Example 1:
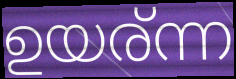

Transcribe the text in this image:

ഉയര്ന്ന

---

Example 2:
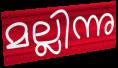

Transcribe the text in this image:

മല്ലിന്നു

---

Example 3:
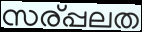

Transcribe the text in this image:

സര്പ്പലത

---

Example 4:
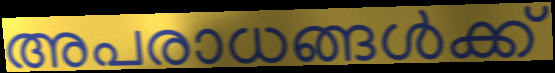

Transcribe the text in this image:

അപരാധങ്ങൾക്ക്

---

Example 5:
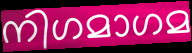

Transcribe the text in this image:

നിഗമാഗമ